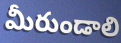
మీరుండాలి